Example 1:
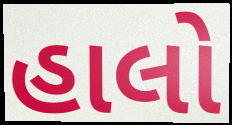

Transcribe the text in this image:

હાલો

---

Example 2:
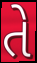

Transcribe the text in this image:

તે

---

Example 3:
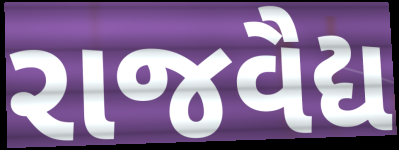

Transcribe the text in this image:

રાજવૈદ્ય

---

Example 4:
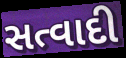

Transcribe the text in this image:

સત્વાદી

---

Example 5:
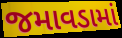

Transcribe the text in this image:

જમાવડામાં